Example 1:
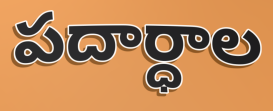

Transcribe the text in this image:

పదార్ధాల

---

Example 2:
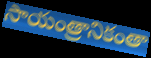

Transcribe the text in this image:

సాయంత్రానికంతా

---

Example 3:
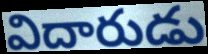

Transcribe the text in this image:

విదారుడు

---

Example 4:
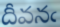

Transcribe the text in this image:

దీవనఁ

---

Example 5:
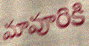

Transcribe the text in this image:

మావూరికి